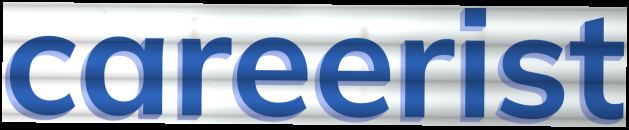
careerist